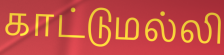
காட்டுமல்லி